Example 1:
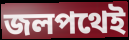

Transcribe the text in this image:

জলপথেই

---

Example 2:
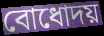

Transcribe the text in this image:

বোধোদয়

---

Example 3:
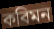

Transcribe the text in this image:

কবিমন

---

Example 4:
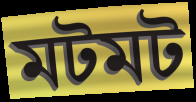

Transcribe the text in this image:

মটমট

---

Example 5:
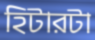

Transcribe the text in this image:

হিটারটা